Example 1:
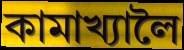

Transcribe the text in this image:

কামাখ্যালৈ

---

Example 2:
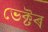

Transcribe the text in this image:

ভেক্টৰ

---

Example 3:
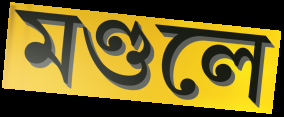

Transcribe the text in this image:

মণ্ডলে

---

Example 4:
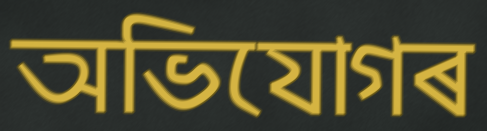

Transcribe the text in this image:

অভিযোগৰ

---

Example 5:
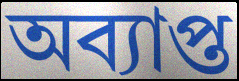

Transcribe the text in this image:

অব্যাপ্ত